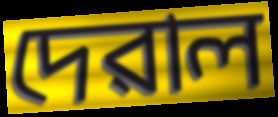
দেৱাল